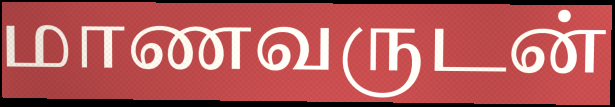
மாணவருடன்